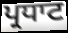
ਪ੍ਰਧਾਟ